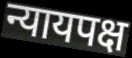
न्यायपक्ष